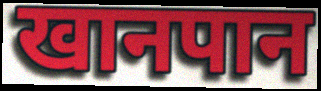
खानपान